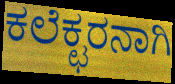
ಕಲೆಕ್ಟರನಾಗಿ